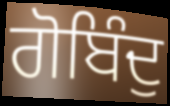
ਗੋਬਿੰਦੁ